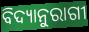
ବିଦ୍ୟାନୁରାଗୀ